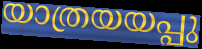
യാത്രയയപ്പു